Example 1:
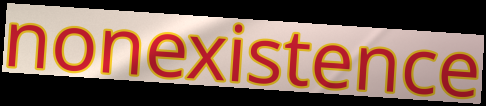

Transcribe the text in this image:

nonexistence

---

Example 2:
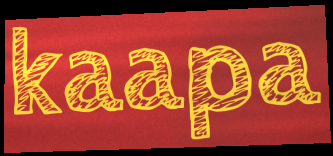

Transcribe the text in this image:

kaapa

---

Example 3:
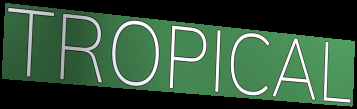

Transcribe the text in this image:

TROPICAL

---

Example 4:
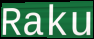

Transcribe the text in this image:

Raku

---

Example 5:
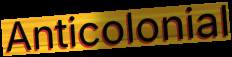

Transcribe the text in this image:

Anticolonial